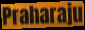
Praharaju